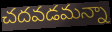
చదవడమన్నా